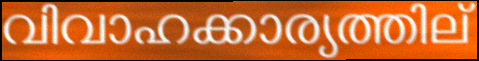
വിവാഹക്കാര്യത്തില്